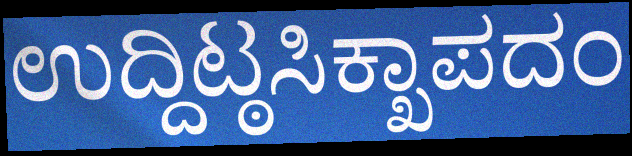
ಉದ್ದಿಟ್ಠಸಿಕ್ಖಾಪದಂ